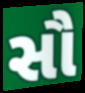
સૌ